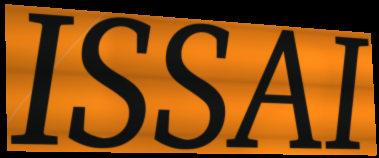
ISSAI